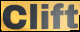
Clift